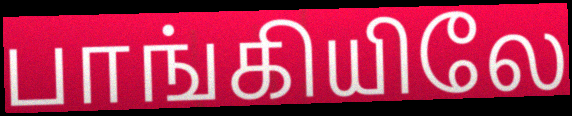
பாங்கியிலே